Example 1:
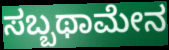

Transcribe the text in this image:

ಸಬ್ಬಥಾಮೇನ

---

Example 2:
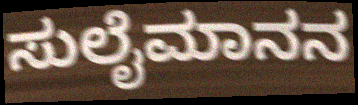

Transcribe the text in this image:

ಸುಲೈಮಾನನ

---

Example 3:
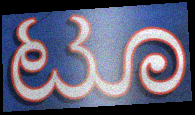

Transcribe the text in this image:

ಟೂ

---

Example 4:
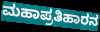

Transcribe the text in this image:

ಮಹಾಪ್ರತಿಹಾರನ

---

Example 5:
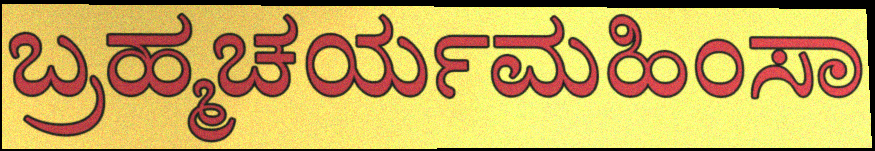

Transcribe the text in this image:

ಬ್ರಹ್ಮಚರ್ಯಮಹಿಂಸಾ